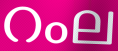
റംല